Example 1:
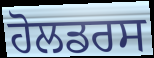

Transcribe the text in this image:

ਹੋਲਡਰਸ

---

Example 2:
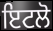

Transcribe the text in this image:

ਇਟਲੋ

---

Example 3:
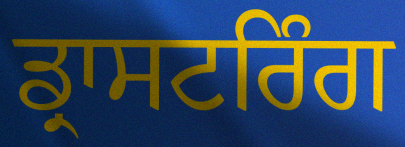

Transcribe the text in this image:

ਡ੍ਰਾਸਟਰਿੰਗ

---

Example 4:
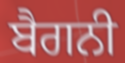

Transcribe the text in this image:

ਬੈਗਨੀ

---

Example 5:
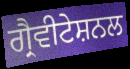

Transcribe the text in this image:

ਗ੍ਰੈਵੀਟੇਸ਼ਨਲ